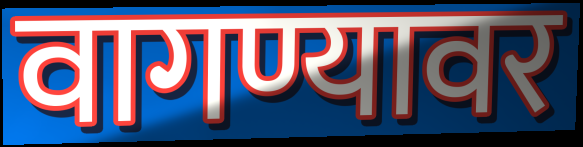
वागण्यावर